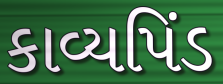
કાવ્યપિંડ